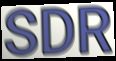
SDR